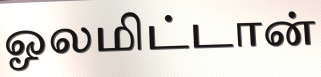
ஓலமிட்டான்